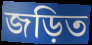
জড়িত